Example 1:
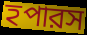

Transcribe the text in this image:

হপারস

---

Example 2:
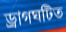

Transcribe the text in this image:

ড্রাগঘটিত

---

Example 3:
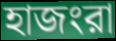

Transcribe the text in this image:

হাজংরা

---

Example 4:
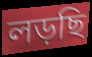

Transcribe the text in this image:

লড়ছি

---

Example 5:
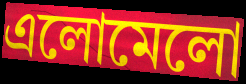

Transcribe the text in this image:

এলোমেলো